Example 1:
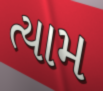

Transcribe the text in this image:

ત્યામ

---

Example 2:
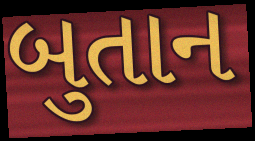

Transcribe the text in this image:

બુતાન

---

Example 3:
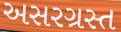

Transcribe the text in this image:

અસરગ્રસ્ત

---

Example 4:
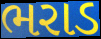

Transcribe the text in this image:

ભરાડ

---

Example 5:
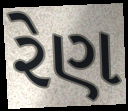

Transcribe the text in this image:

રેણ